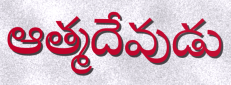
ఆత్మదేవుడు